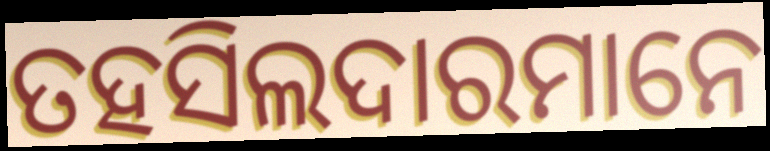
ତହସିଲଦାରମାନେ